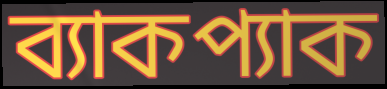
ব্যাকপ্যাক